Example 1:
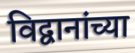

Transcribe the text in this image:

विद्वानांच्या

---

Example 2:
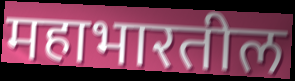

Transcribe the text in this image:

महाभारतील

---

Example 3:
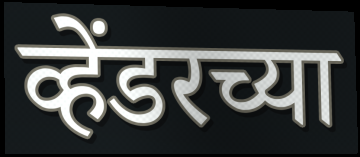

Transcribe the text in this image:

व्हेंडरच्या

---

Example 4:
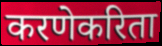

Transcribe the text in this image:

करणेकरिता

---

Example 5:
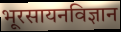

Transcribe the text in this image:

भूरसायनविज्ञान